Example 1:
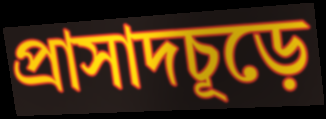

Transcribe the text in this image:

প্রাসাদচূড়ে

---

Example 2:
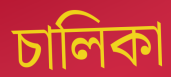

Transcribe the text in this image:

চালিকা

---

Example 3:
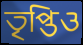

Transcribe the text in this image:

তৃপ্তিও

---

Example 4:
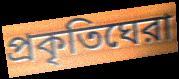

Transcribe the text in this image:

প্রকৃতিঘেরা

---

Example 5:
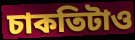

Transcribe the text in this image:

চাকতিটাও